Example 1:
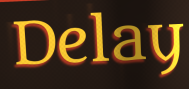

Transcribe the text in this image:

Delay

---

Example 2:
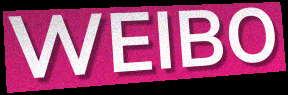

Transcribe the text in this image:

WEIBO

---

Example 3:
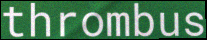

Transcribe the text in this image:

thrombus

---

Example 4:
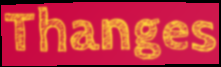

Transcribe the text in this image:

Thanges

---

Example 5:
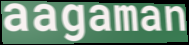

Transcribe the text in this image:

aagaman